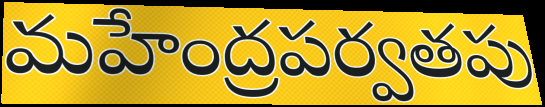
మహేంద్రపర్వతపు